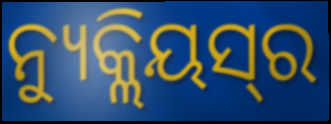
ନ୍ୟୁକ୍ଲିୟସ୍‌ର